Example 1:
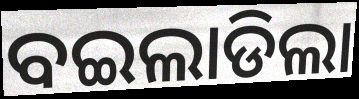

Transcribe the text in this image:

ବଇଲାଡିଲା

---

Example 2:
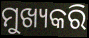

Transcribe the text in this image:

ମୁଖ୍ୟକରି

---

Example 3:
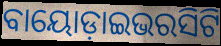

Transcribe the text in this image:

ବାୟୋଡ଼ାଇଭରସିଟି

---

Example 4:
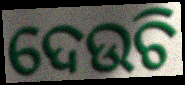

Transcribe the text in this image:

ଦେଉଚି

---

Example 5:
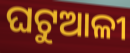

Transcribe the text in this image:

ଘଟୁଆଳୀ